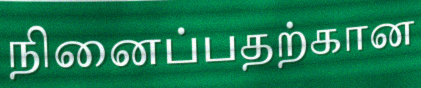
நினைப்பதற்கான